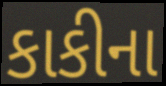
કાકીના